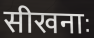
सीखनाः